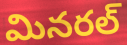
మినరల్